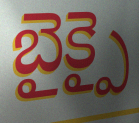
బైక్పై